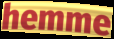
hemme